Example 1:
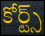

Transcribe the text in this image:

కోర్ట్స్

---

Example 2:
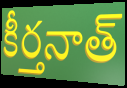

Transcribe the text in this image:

కీర్తనాత్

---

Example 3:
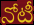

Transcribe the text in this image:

నోటీ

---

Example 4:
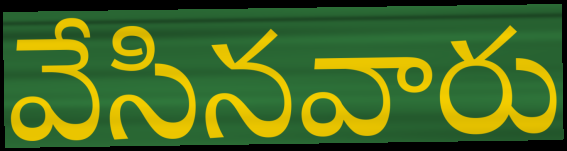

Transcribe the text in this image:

వేసినవారు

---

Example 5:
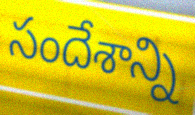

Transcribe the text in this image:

సందేశాన్ని